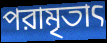
পরামৃতাৎ